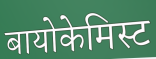
बायोकेमिस्ट